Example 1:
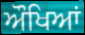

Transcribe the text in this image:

ਔਖਿਆਂ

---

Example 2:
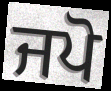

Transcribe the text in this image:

ਜਪੋ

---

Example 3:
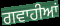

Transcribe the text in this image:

ਗਵਾਹੀਆਂ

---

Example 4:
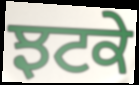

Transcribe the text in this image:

ਝਟਕੇ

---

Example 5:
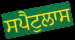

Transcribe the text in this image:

ਸਪੈਟੁਲਾਸ